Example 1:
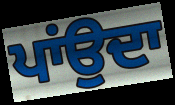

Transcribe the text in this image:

ਪਾਂਉਦਾ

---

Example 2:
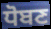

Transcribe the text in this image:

ਧੋਬਣ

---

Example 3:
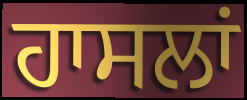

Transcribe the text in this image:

ਹਾਸਲਾਂ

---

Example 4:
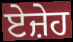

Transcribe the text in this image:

ਏਜ਼ੇਹ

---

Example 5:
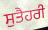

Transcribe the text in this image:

ਸੁਤੈਹਰੀ